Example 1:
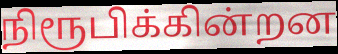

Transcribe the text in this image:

நிரூபிக்கின்றன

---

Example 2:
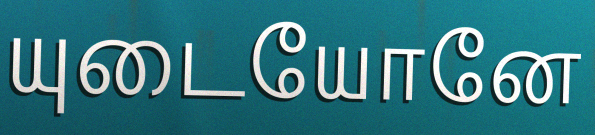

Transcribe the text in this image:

யுடையோனே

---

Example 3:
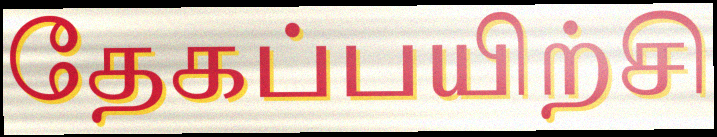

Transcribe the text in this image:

தேகப்பயிற்சி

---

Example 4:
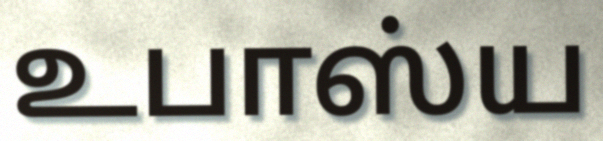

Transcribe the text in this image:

உபாஸ்ய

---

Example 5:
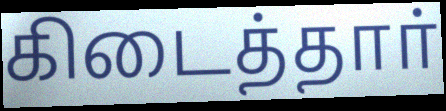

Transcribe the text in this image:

கிடைத்தார்